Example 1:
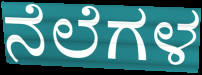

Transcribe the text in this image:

ನೆಲೆಗಳ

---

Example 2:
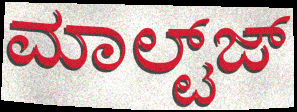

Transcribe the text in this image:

ಮಾಲ್ಟ್‌ಜ್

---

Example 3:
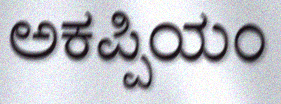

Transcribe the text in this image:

ಅಕಪ್ಪಿಯಂ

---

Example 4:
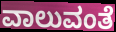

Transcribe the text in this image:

ವಾಲುವಂತೆ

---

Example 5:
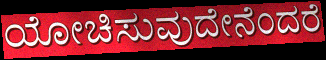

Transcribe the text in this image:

ಯೋಚಿಸುವುದೇನೆಂದರೆ